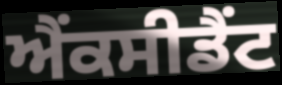
ਐਂਕਸੀਡੈਂਟ